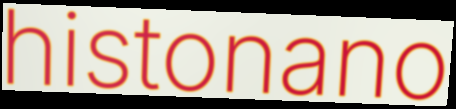
histonano